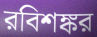
রবিশঙ্কর